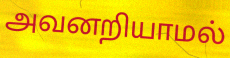
அவனறியாமல்